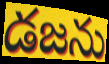
డజను